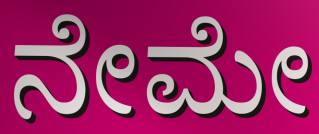
ನೇಮೇ